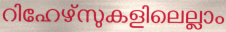
റിഹേഴ്സുകളിലെല്ലാം